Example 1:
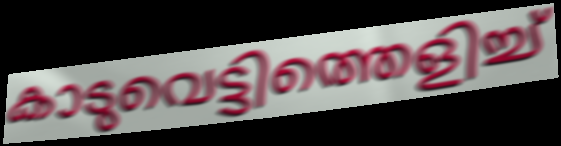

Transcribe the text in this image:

കാടുവെട്ടിത്തെളിച്ച്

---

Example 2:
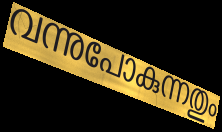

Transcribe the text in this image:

വന്നുപോകുന്നതും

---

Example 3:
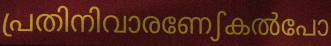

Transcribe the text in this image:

പ്രതിനിവാരണേഽകൽപോ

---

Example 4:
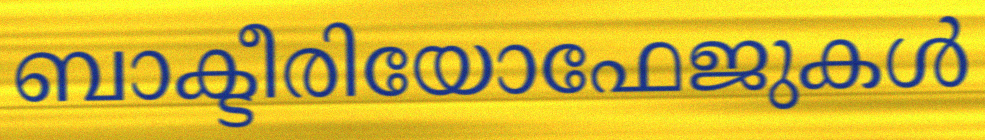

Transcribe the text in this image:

ബാക്ടീരിയോഫേജുകൾ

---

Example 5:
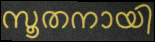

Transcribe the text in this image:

സൂതനായി